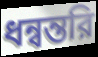
ধন্বন্তরি